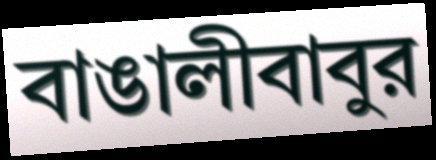
বাঙালীবাবুর